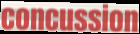
concussion